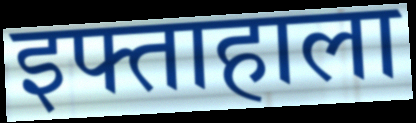
इफ्ताहाला